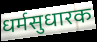
धर्मसुधारक